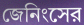
জেনিংসের